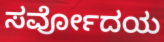
ಸರ್ವೋದಯ